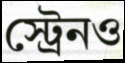
স্ট্রেনও